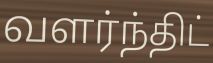
வளர்ந்திட்